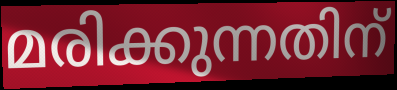
മരിക്കുന്നതിന്